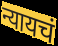
न्यायचं